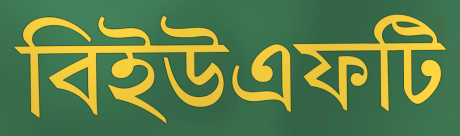
বিইউএফটি